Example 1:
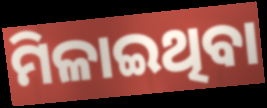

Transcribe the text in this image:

ମିଳାଇଥିବା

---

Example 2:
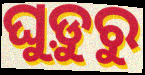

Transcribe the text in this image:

ଘୁଡ଼ୁରୁ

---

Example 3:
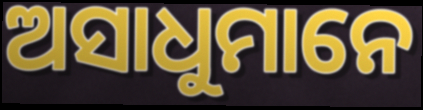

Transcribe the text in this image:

ଅସାଧୁମାନେ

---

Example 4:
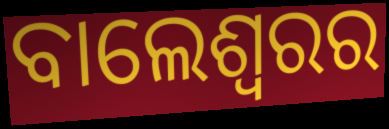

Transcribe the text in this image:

ବାଲେଶ୍ୱରର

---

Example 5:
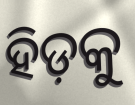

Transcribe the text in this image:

ହିଡ଼କୁ